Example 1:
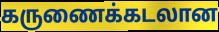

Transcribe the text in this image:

கருணைக்கடலான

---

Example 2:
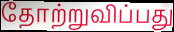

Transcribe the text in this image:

தோற்றுவிப்பது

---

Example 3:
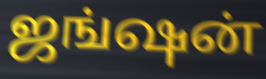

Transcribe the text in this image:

ஜங்ஷன்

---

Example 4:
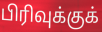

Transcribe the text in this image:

பிரிவுக்குக்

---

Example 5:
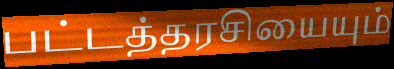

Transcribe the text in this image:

பட்டத்தரசியையும்